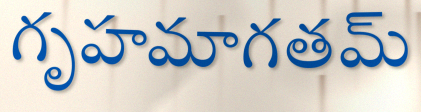
గృహమాగతమ్